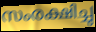
സംരക്ഷിച്ചു